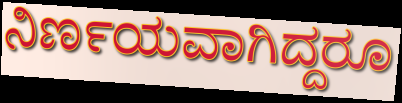
ನಿರ್ಣಯವಾಗಿದ್ದರೂ